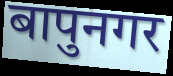
बापुनगर